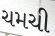
ચમચી